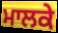
ਮਾਲਕੇ